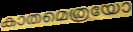
കാതമെത്രയോ